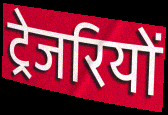
ट्रेजरियों